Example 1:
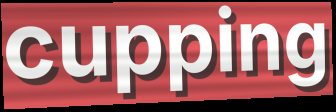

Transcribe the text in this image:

cupping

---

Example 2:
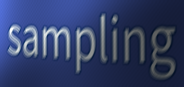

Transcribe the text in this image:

sampling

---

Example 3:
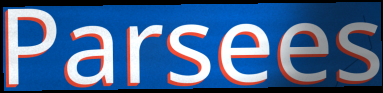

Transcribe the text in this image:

Parsees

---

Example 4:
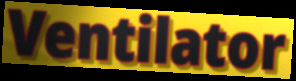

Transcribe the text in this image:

Ventilator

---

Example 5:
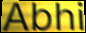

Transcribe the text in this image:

Abhi